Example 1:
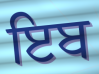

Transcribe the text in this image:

ਇਬ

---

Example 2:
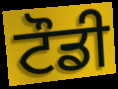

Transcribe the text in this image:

ਟੌਡੀ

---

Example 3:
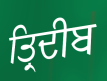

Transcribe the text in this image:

ਤ੍ਰਿਦੀਬ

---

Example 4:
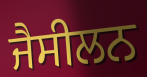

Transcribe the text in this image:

ਜੈਸੀਲਨ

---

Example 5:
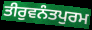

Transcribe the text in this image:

ਤੀਰੁਵਨੰਤਪੁਰਮ